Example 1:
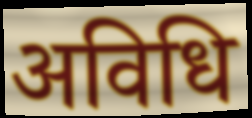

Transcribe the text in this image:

अविधि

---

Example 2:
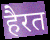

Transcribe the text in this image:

हैरत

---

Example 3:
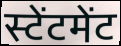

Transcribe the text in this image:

स्टेंटमेंट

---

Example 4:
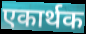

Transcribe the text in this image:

एकार्थक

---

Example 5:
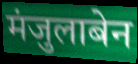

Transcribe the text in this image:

मंजुलाबेन